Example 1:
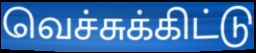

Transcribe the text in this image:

வெச்சுக்கிட்டு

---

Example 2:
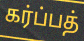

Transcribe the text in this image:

கர்ப்பத்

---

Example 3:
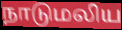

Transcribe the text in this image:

நாடுமலிய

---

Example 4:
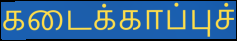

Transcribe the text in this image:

கடைக்காப்புச்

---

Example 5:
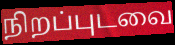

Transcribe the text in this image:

நிறப்புடவை